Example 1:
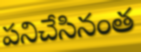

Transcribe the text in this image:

పనిచేసినంత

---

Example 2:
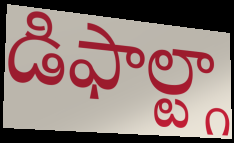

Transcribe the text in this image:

డిఫాల్ట్గా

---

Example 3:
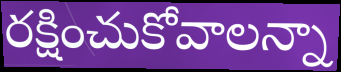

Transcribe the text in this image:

రక్షించుకోవాలన్నా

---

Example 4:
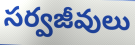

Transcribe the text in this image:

సర్వజీవులు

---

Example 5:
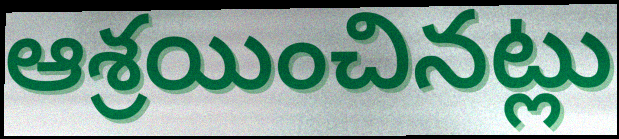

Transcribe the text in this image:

ఆశ్రయించినట్లు